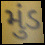
મુંડ